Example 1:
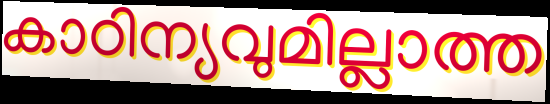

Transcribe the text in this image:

കാഠിന്യവുമില്ലാത്ത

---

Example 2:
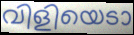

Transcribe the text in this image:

വിളിയെടാ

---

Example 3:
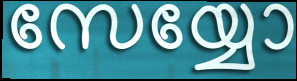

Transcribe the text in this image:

സേയ്യോ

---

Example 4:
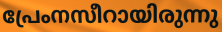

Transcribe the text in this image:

പ്രേംനസീറായിരുന്നു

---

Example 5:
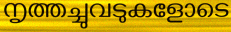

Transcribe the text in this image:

നൃത്തച്ചുവടുകളോടെ